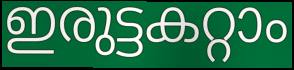
ഇരുട്ടകറ്റാം